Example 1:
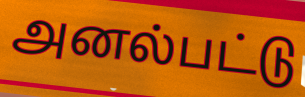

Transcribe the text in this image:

அனல்பட்டு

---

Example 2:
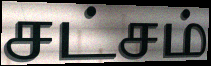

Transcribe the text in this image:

சட்சம்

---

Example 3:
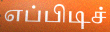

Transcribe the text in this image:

எப்பிடிச்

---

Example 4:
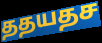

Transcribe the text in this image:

ததயதச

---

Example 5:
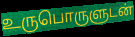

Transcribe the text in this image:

உருபொருளுடன்